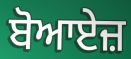
ਬੋਆਏਜ਼